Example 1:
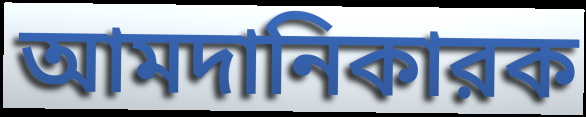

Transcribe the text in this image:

আমদানিকারক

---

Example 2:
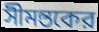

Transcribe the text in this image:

সীমন্তকের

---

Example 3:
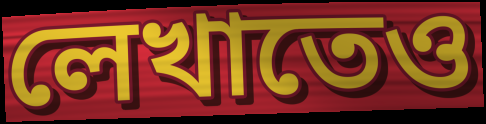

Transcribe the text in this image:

লেখাতেও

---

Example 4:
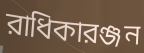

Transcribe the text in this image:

রাধিকারঞ্জন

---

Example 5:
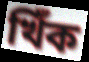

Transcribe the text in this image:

খিঁক